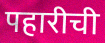
पहारीची